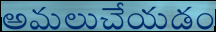
అమలుచేయడం